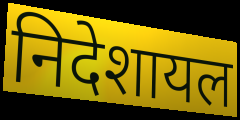
निदेशायल